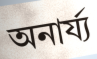
অনার্য্য